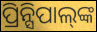
ପ୍ରିନ୍ସିପାଲ୍‍ଙ୍କ